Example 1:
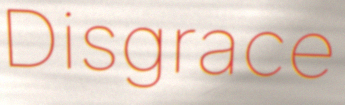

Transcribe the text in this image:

Disgrace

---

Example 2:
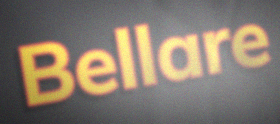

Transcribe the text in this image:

Bellare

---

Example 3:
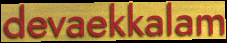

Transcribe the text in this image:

devaekkalam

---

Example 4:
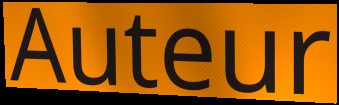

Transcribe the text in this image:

Auteur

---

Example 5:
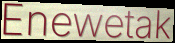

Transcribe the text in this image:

Enewetak